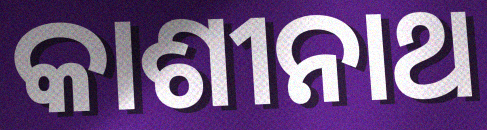
କାଶୀନାଥ